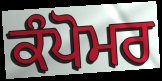
ਕੰਪੋਮਰ